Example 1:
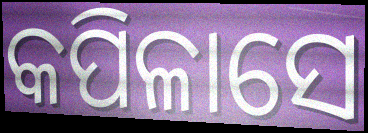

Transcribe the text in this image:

କପିଳାସେ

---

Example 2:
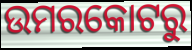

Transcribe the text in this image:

ଉମରକୋଟରୁ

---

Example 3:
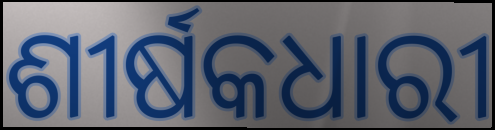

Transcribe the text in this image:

ଶୀର୍ଷକଧାରୀ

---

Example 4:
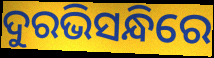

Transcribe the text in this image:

ଦୁରଭିସନ୍ଧିରେ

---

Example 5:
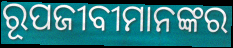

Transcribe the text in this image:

ରୂପଜୀବୀମାନଙ୍କର